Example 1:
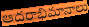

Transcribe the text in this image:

ఆదరాభిమానాలు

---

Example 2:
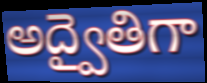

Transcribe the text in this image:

అద్వైతిగా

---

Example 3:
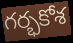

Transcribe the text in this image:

గర్భకోశ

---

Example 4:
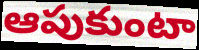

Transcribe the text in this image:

ఆపుకుంటా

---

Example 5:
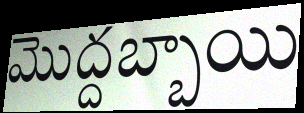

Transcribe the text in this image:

మొద్దబ్బాయి